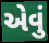
એવું